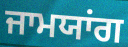
ਜਾਮਯਾਂਗ